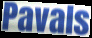
Pavals